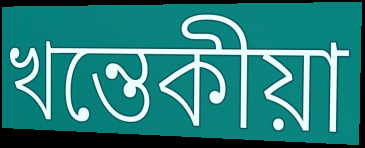
খন্তেকীয়া